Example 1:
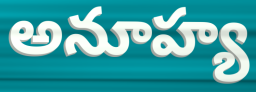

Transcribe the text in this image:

అనూహ్య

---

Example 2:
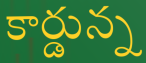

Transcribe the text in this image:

కార్డున్న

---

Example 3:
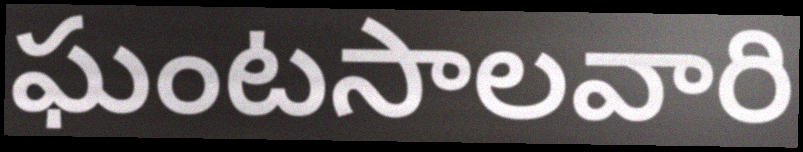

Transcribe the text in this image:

ఘంటసాలవారి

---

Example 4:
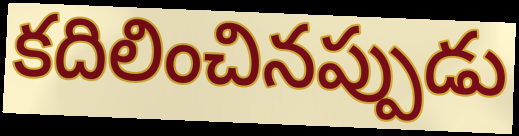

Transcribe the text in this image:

కదిలించినప్పుడు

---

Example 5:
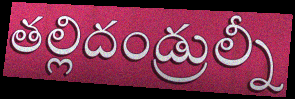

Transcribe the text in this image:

తల్లిదండ్రుల్నీ